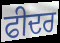
ਫੀਦਰ